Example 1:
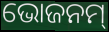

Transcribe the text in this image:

ଭୋଜନମ୍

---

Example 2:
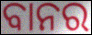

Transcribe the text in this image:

ବାନର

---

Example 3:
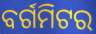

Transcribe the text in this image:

ବର୍ଗମିଟର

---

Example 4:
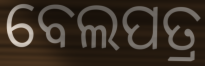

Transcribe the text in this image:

ବେଲପତ୍ର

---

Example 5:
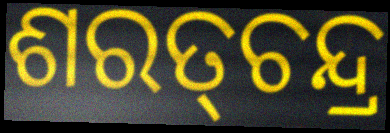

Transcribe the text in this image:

ଶରତ୍‌ଚନ୍ଦ୍ର